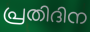
പ്രതിദിന